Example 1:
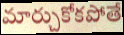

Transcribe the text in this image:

మార్చుకోకపోతే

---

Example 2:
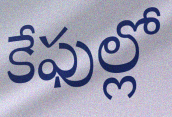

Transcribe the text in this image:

కేఫుల్లో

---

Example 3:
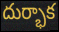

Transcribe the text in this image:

దుర్భాక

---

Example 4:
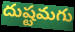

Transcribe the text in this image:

దుష్టమగు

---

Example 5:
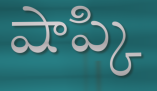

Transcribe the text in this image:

షాప్కి